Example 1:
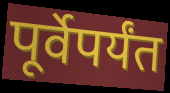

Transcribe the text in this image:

पूर्वेपर्यंत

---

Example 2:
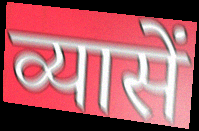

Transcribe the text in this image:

व्यासें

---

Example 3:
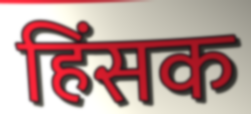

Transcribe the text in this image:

हिंसक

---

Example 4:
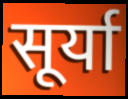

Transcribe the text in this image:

सूर्या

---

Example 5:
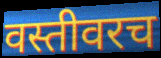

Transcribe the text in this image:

वस्तीवरच